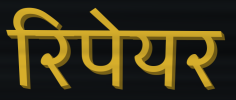
रिपेयर